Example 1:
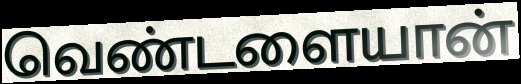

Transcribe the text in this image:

வெண்டளையான்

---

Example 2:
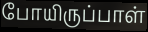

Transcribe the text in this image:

போயிருப்பாள்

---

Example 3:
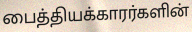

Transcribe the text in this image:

பைத்தியக்காரர்களின்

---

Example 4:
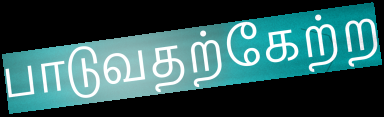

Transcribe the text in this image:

பாடுவதற்கேற்ற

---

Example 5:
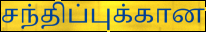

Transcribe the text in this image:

சந்திப்புக்கான